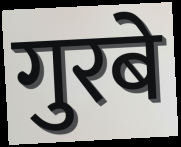
गुरबे